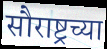
सौराष्ट्रच्या